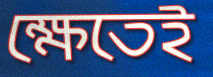
ক্ষেতেই